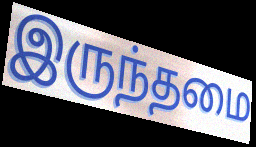
இருந்தமை